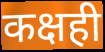
कक्षही